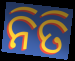
ନିତି